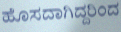
ಹೊಸದಾಗಿದ್ದರಿಂದ